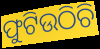
ଫୁଟିଉଠିଚି